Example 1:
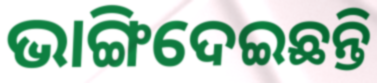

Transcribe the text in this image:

ଭାଙ୍ଗିଦେଇଛନ୍ତି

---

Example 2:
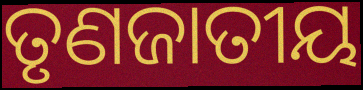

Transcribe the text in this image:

ତୃଣଜାତୀୟ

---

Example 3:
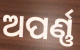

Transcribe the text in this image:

ଅପର୍ଣ୍ଣ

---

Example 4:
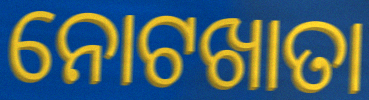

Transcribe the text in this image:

ନୋଟଖାତା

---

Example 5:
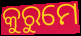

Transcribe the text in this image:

କୁରୁମେ